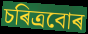
চৰিত্ৰবোৰ